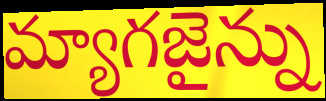
మ్యాగజైన్ను